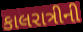
કાલરાત્રીની